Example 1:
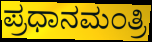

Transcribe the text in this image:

ಪ್ರಧಾನಮಂತ್ರಿ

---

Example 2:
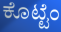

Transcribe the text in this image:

ಕೊಟ್ಟೆಂ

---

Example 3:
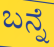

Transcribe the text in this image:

ಬನ್ನೆ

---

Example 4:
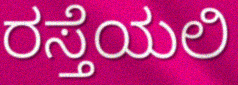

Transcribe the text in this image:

ರಸ್ತೆಯಲಿ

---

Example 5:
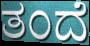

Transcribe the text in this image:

ತಂದೆ